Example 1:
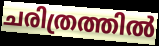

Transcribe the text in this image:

ചരിത്രത്തിൽ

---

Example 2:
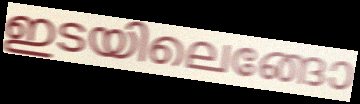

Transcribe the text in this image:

ഇടയിലെങ്ങോ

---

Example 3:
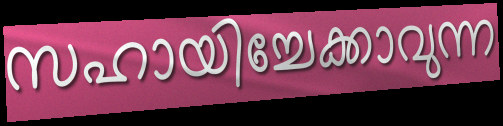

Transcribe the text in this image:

സഹായിച്ചേക്കാവുന്ന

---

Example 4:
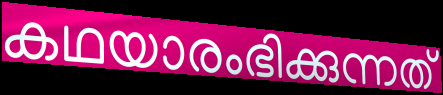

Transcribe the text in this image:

കഥയാരംഭിക്കുന്നത്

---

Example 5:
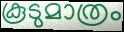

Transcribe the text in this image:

കൂടുമാത്രം